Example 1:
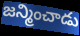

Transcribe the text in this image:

జన్మించాడు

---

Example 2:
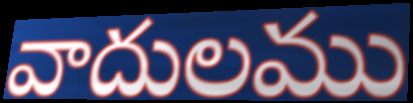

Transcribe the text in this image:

వాదులము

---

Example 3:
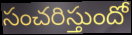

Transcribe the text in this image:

సంచరిస్తుందో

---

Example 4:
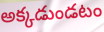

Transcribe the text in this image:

అక్కడుండటం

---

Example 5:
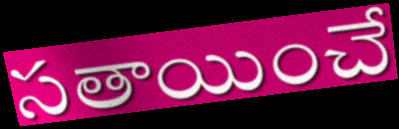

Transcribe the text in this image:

సతాయించే